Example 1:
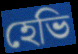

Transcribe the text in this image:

হেভি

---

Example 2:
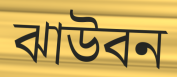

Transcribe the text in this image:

ঝাউবন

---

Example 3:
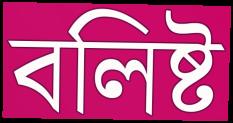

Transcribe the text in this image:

বলিষ্ট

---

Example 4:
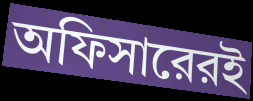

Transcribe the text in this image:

অফিসারেরই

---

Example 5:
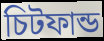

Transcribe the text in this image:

চিটফান্ড